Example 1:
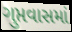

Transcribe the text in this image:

ગુપ્તવાસમાં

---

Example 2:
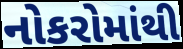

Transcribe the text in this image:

નોકરોમાંથી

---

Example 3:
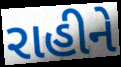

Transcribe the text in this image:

રાહીને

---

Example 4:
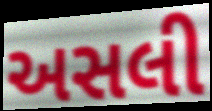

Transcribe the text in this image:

અસલી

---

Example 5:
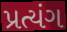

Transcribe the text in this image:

પ્રત્યંગ